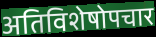
अतिविशेषोपचार